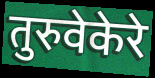
तुरुवेकेरे